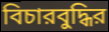
বিচারবুদ্ধির